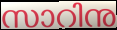
സാറിനു